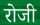
रोजी